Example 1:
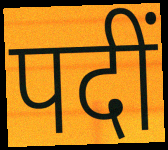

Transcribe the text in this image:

पदीं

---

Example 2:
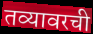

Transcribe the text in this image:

तव्यावरची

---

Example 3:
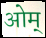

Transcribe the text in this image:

ओम्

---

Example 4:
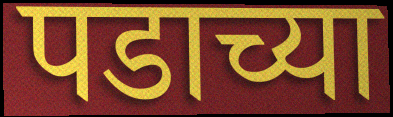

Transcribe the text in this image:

पडाच्या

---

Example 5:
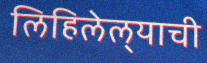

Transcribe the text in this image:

लिहिलेल्याची